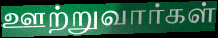
ஊற்றுவார்கள்